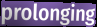
prolonging